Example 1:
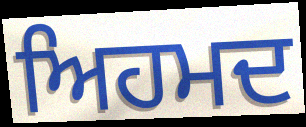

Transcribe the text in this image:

ਅਿਹਮਦ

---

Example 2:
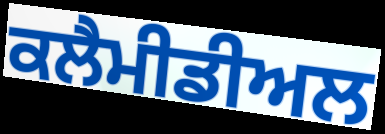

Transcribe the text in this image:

ਕਲੈਮੀਡੀਅਲ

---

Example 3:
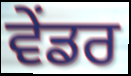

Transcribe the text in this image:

ਵੇਂਡਰ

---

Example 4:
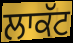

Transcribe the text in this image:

ਲਾਕੱਟ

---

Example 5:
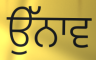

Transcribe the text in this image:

ਉੱਨਾਵ